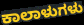
ಕಾಲಾಳುಗಳು